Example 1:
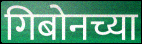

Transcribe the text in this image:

गिबोनच्या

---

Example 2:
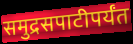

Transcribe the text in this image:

समुद्रसपाटीपर्यंत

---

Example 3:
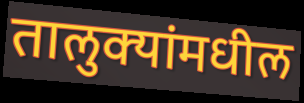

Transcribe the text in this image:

तालुक्यांमधील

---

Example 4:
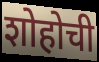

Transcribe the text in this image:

शोहोची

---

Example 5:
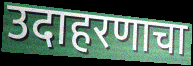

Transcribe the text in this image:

उदाहरणाचा